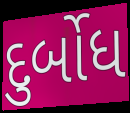
દુર્બોધ